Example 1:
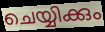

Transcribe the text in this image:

ചെയ്യിക്കും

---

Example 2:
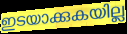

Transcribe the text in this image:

ഇടയാക്കുകയില്ല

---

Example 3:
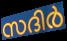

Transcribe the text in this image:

സദിർ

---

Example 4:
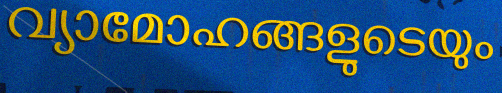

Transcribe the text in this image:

വ്യാമോഹങ്ങളുടെയും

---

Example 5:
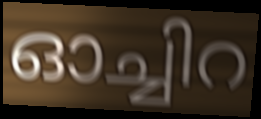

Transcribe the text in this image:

ഓച്ചിറ